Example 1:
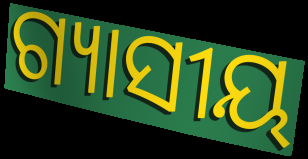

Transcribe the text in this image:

ଗ୍ୟାସୀୟ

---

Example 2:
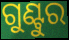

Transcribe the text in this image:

ଗୁଣ୍ଟୁର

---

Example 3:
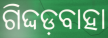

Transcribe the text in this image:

ଗିଦ୍ଦଡ଼ବାହା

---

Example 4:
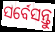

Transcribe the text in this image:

ସର୍ବେସନ୍ତୁ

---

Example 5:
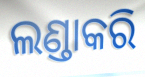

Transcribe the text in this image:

ଲଣ୍ଡାକରି